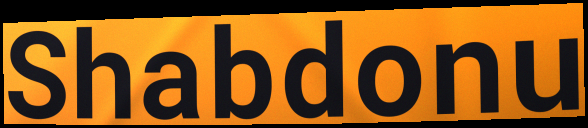
Shabdonu